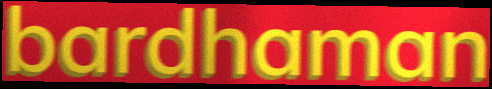
bardhaman